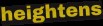
heightens